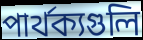
পার্থক্যগুলি